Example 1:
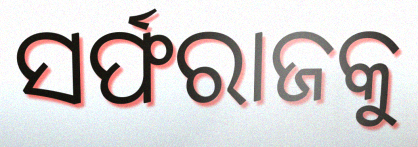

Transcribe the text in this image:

ସର୍ଫରାଜକୁ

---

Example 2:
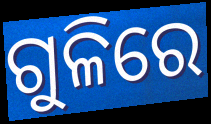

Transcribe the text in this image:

ଗୁଳିରେ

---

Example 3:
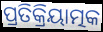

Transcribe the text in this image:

ପ୍ରତିକ୍ରିୟାତ୍ମକ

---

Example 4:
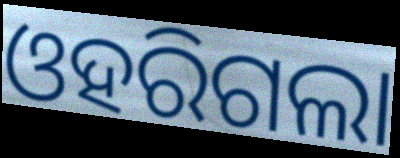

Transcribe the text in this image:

ଓହରିଗଲା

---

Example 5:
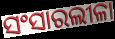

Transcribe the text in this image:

ସଂସାରଲୀଳା